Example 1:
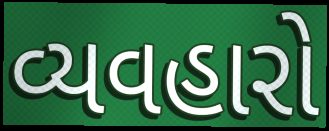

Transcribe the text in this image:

વ્યવહારો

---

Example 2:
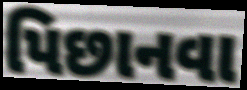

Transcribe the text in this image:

પિછાનવા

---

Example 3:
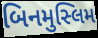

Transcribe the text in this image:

બિનમુસ્લિમ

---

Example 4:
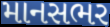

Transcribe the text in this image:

માનસભર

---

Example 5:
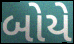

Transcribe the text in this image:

બોયે